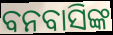
ବନବାସିଙ୍କ